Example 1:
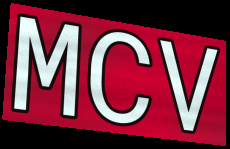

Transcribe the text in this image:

MCV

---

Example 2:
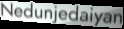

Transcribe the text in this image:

Nedunjedaiyan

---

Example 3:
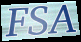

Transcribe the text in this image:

FSA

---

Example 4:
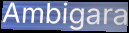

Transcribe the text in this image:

Ambigara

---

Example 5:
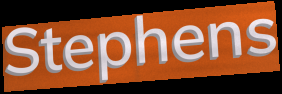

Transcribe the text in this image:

Stephens